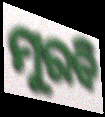
ମୂରବି